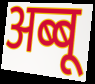
अब्बू